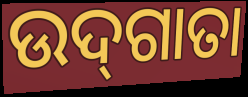
ଉଦ୍‌ଗାତା